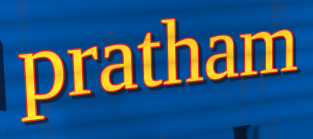
pratham